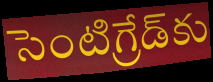
సెంటిగ్రేడ్‌కు